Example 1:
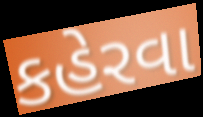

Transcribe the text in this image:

કહેરવા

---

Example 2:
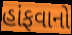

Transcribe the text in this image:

હાંફવાનો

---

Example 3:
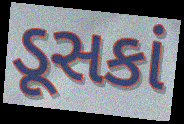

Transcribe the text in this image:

ડૂસકાં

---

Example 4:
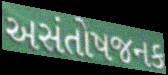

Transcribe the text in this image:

અસંતોષજનક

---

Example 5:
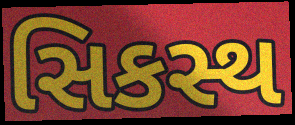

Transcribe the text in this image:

સિકસ્થ